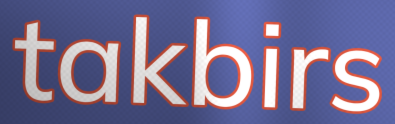
takbirs